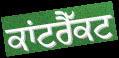
ਕਾਂਟਰੈੱਕਟ